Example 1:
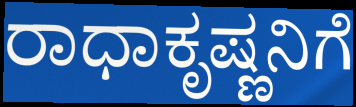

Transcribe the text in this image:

ರಾಧಾಕೃಷ್ಣನಿಗೆ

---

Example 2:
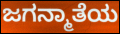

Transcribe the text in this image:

ಜಗನ್ಮಾತೆಯ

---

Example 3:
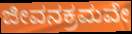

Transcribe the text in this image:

ಜೀವನಕ್ರಮವೇ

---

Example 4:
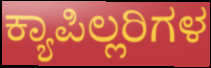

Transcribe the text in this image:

ಕ್ಯಾಪಿಲ್ಲರಿಗಳ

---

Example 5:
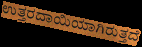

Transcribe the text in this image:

ಉತ್ತರದಾಯಿಯಾಗಿರುತ್ತದೆ